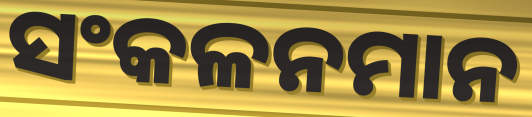
ସଂକଳନମାନ